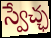
స్వేచ్ఛ